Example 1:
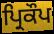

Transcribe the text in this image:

ਪ੍ਰਿਕੌਪ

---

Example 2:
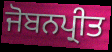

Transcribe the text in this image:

ਜੋਬਨਪ੍ਰੀਤ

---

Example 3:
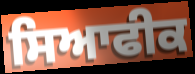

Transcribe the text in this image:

ਸਿਆਫੀਕ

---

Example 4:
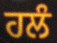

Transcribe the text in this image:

ਹਲੰ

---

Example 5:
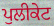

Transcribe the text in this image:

ਪੁਲੀਕੇਟ